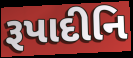
રૂપાદીનિ